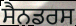
ਸੈਨਡਰਸ